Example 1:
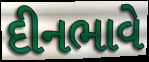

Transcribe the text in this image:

દીનભાવે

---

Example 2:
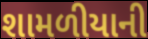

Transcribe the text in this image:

શામળીયાની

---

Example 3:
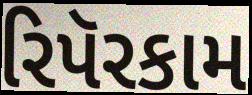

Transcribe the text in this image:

રિપૅરકામ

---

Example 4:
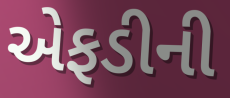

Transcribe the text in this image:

એફડીની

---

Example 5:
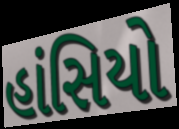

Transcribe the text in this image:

હાંસિયો